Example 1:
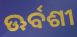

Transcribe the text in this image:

ଊର୍ବଶୀ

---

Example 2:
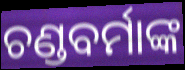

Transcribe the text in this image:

ଚଣ୍ଡବର୍ମାଙ୍କ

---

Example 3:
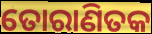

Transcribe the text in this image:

ତୋରାଣିତକ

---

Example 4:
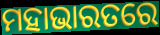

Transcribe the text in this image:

ମହାଭାରତରେ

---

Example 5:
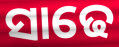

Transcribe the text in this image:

ସାଢେ